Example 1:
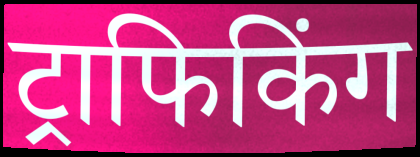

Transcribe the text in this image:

ट्राफिकिंग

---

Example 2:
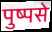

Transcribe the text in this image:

पुष्पसे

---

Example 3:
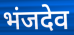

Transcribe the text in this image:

भंजदेव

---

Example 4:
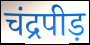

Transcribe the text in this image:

चंद्रपीड़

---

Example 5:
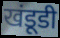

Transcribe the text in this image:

खंडूडी